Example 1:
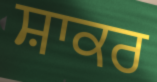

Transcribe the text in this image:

ਸ਼ਾਕਰ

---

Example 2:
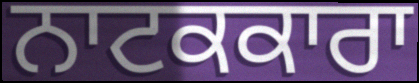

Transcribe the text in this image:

ਨਾਟਕਕਾਰਾ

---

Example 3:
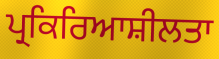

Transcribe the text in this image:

ਪ੍ਰਕਿਰਿਆਸ਼ੀਲਤਾ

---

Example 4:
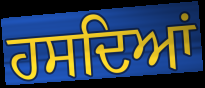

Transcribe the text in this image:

ਹਸਦਿਆਂ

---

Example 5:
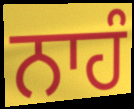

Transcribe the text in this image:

ਨਾਹੰ